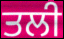
ਤਲੀ